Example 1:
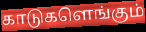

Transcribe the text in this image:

காடுகளெங்கும்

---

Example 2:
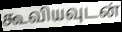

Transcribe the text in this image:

கூவியவுடன்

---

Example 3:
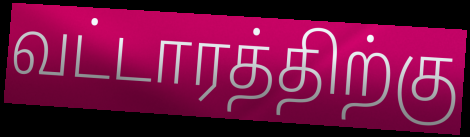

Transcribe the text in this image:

வட்டாரத்திற்கு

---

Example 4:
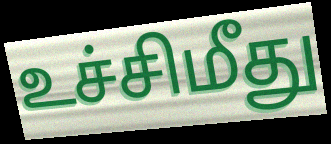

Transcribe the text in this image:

உச்சிமீது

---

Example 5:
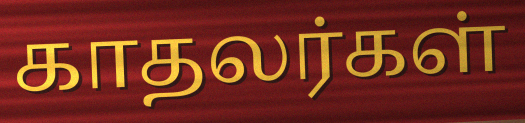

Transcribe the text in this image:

காதலர்கள்